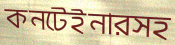
কনটেইনারসহ